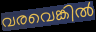
വരവെങ്കിൽ